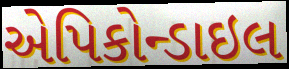
એપિકોન્ડાઇલ